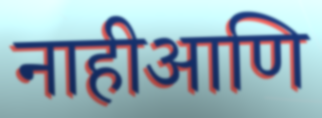
नाहीआणि